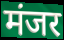
मंजर